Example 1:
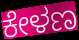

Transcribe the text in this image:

ಕೇಳಣ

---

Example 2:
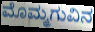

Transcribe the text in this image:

ಮೊಮ್ಮಗುವಿನ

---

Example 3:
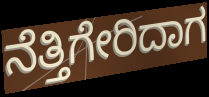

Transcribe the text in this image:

ನೆತ್ತಿಗೇರಿದಾಗ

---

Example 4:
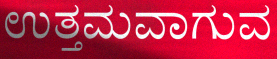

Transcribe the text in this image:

ಉತ್ತಮವಾಗುವ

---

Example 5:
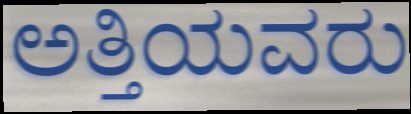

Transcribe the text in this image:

ಅತ್ತಿಯವರು